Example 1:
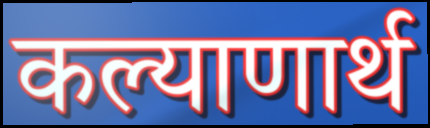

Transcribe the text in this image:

कल्याणार्थ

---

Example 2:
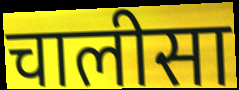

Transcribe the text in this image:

चालीसा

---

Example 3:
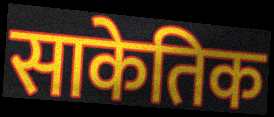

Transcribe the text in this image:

साकेतिक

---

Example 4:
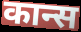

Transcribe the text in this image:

कान्स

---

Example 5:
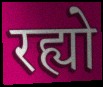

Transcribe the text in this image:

रह्यो